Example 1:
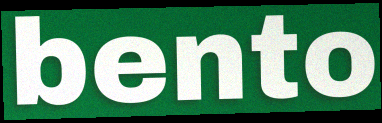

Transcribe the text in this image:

bento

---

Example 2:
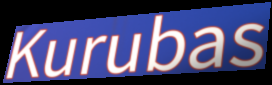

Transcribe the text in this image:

Kurubas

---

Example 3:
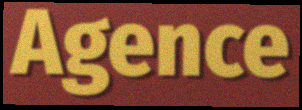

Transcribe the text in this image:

Agence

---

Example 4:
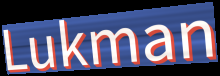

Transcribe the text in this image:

Lukman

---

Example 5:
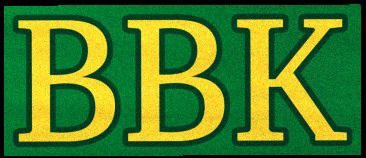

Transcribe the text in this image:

BBK